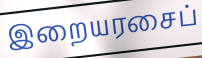
இறையரசைப்